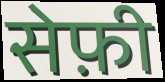
सेफ़ी